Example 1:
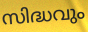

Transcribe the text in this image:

സിദ്ധവും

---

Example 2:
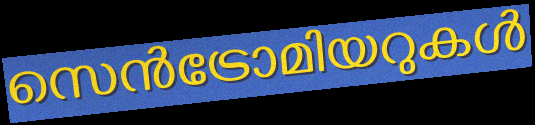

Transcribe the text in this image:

സെൻട്രോമിയറുകൾ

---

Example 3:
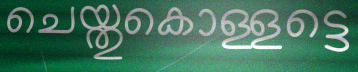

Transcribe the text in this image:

ചെയ്തുകൊള്ളട്ടെ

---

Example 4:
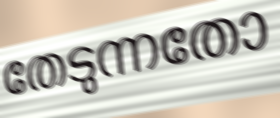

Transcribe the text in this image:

തേടുന്നതോ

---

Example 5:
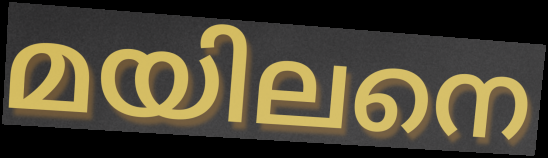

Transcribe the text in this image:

മയിലനെ